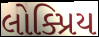
લોક્પ્રિય